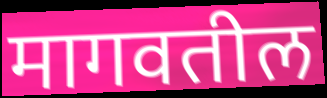
मागवतील